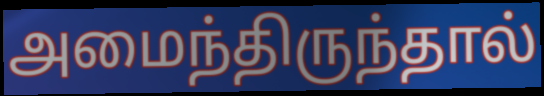
அமைந்திருந்தால்